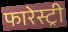
फारेस्ट्री